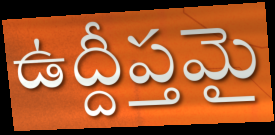
ఉద్దీప్తమై